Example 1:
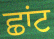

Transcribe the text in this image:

ਛਾਂਟ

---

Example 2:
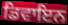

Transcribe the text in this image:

ਡਿਵਾਇਨ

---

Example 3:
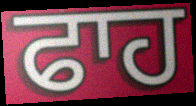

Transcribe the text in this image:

ਫਾਹ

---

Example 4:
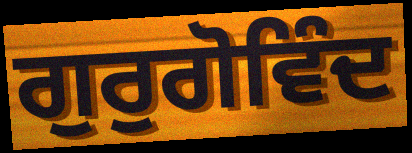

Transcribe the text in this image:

ਗੁਰੁਗੋਵਿੰਦ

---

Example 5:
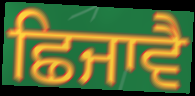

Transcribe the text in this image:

ਛਿਜਾਵੈ